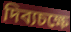
দিব্যচক্ষে